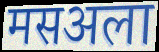
मसअला